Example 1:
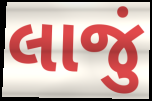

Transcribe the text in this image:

લાજું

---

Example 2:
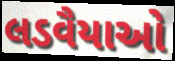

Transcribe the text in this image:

લડવૈયાઓ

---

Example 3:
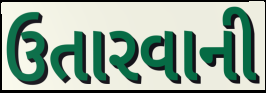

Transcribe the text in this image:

ઉતારવાની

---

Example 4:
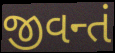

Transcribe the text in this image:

જીવન્તં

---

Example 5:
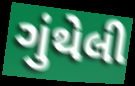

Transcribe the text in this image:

ગુંથેલી